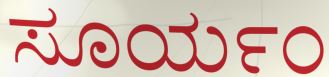
ಸೂರ್ಯಂ